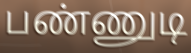
பண்ணுடி